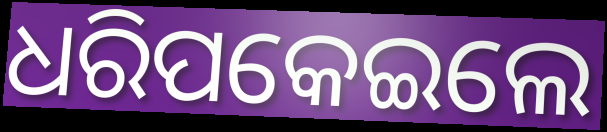
ଧରିପକେଇଲେ